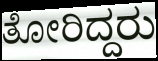
ತೋರಿದ್ದರು